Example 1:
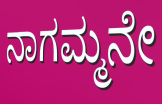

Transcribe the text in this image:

ನಾಗಮ್ಮನೇ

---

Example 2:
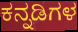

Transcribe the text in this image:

ಕನ್ನಡಿಗಳ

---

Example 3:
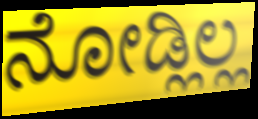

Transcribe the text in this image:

ನೋಡ್ಲಿಲ್ಲ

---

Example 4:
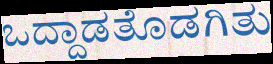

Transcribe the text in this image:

ಒದ್ದಾಡತೊಡಗಿತು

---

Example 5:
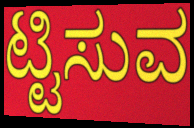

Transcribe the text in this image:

ಟ್ಟಿಸುವ